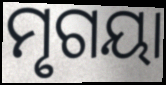
ମୃଗୟା